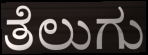
ತೆಲುಗು